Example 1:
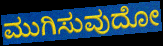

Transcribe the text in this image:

ಮುಗಿಸುವುದೋ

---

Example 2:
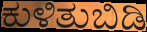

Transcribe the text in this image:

ಕುಳಿತುಬಿಡಿ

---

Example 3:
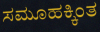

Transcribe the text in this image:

ಸಮೂಹಕ್ಕಿಂತ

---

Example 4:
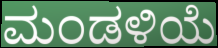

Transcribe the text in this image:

ಮಂಡಳಿಯೆ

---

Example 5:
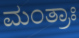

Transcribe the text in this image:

ಮಂತ್ರಾಃ